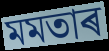
মমতাৰ